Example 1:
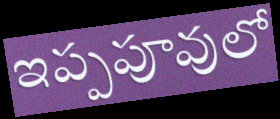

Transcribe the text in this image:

ఇప్పపూవులో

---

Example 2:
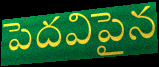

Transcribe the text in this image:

పెదవిపైన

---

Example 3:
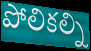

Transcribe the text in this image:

పోలికల్ని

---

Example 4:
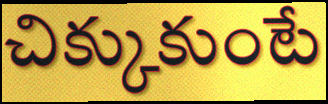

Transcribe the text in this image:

చిక్కుకుంటే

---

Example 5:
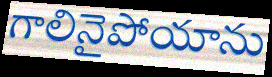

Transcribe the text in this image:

గాలినైపోయాను